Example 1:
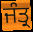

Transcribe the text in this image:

ਜੰਤ੍ਰ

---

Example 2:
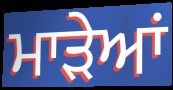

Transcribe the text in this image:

ਮਾੜੇਆਂ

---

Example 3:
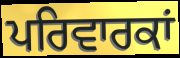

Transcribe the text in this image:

ਪਰਿਵਾਰਕਾਂ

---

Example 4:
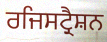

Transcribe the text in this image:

ਰਜਿਸਟ੍ਰੈਸ਼ਨ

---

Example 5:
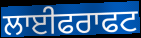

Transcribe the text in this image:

ਲਾਈਫਰਾਫਟ